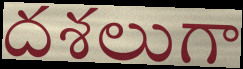
దశలుగా